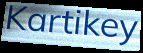
Kartikey